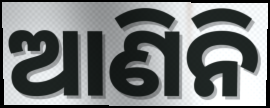
ଆଣିନି